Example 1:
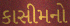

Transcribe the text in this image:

કાસીમનો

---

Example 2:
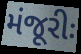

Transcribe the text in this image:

મંજૂરીઃ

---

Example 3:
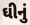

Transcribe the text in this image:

ઘીનું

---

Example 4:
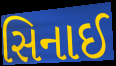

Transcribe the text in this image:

સિનાઈ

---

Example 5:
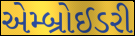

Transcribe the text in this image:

એમ્બ્રોઈડરી